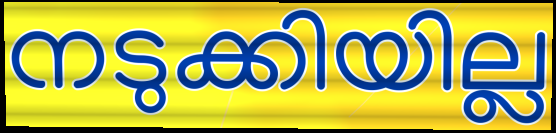
നടുക്കിയില്ല